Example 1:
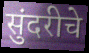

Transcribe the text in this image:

सुंदरीचे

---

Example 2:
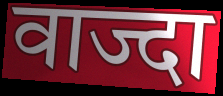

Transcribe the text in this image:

वाज्दा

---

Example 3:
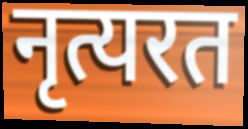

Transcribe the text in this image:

नृत्यरत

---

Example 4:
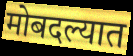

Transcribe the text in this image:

मोबदल्यात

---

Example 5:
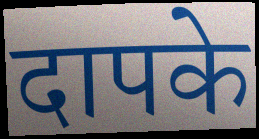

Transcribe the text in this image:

दापके